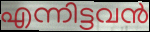
എന്നിട്ടവൻ